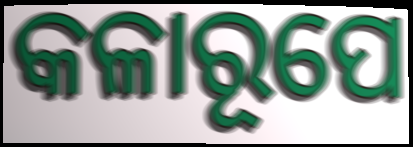
କଳାରୂପେ